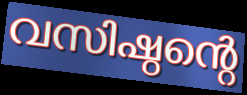
വസിഷ്ഠന്റെ